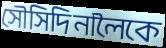
সৌসিদিনালৈকে